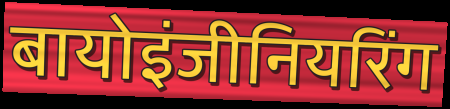
बायोइंजीनियरिंग